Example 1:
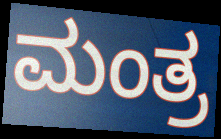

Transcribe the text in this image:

ಮಂತ್ರ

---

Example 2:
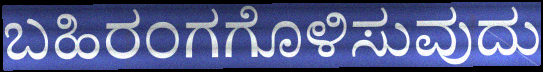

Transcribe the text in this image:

ಬಹಿರಂಗಗೊಳಿಸುವುದು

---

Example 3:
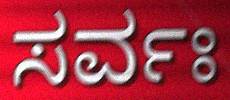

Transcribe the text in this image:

ಸರ್ವಃ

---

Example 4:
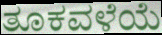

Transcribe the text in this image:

ತೂಕವಳೆಯೆ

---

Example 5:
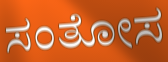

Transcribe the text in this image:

ಸಂತೋಸ